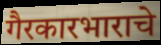
गैरकारभाराचे